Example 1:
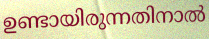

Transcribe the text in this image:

ഉണ്ടായിരുന്നതിനാൽ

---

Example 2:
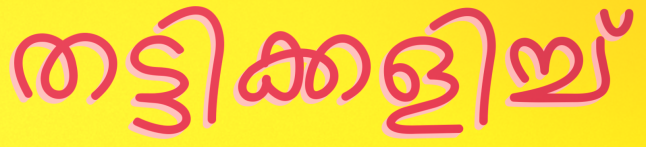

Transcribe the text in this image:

തട്ടിക്കളിച്ച്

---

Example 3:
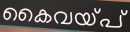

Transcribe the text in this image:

കൈവയ്പ്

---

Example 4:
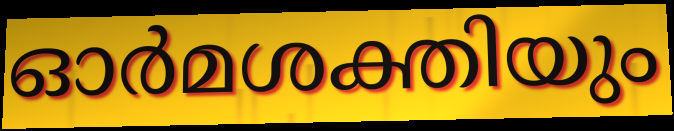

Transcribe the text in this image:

ഓർമശക്തിയും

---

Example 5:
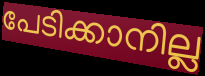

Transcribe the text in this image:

പേടിക്കാനില്ല